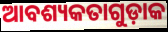
ଆବଶ୍ୟକତାଗୁଡ଼ାକ